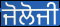
ਜੋਲੋਜੀ